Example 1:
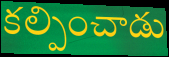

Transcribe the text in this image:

కల్పించాడు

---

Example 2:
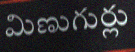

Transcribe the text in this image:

మిణుగుర్లు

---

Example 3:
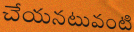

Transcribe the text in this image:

చేయనటువంటి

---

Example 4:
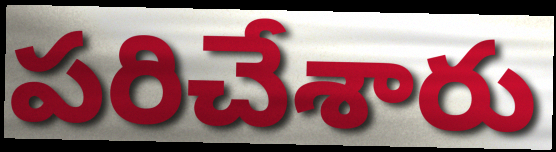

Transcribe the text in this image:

పరిచేశారు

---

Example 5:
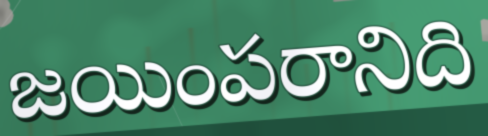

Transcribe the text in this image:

జయింపరానిది